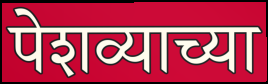
पेशव्याच्या